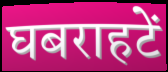
घबराहटें